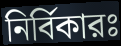
নির্বিকারঃ